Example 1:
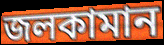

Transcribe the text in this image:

জলকামান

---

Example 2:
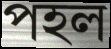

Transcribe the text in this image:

পহল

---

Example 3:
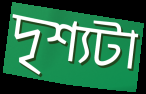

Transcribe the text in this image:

দৃশ্যটা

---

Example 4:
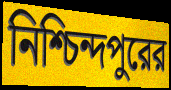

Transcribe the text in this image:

নিশ্চিন্দপুরের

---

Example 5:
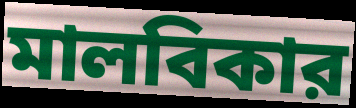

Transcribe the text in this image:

মালবিকার